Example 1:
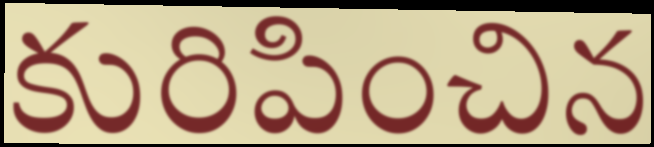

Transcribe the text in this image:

కురిపించిన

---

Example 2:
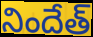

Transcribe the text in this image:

నిందేత్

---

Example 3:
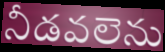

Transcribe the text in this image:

నీడవలెను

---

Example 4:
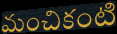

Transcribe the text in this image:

మంచికంటి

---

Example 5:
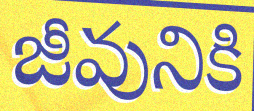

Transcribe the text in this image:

జీవునికి